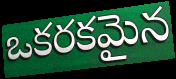
ఒకరకమైన